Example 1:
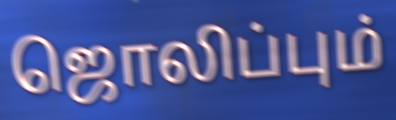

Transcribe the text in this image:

ஜொலிப்பும்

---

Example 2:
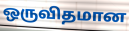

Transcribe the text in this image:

ஒருவிதமான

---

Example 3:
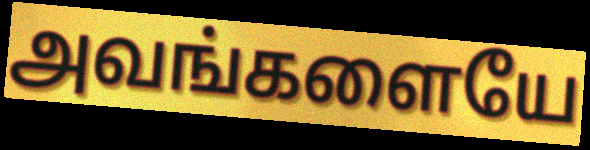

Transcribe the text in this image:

அவங்களையே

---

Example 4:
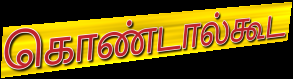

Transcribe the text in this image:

கொண்டால்கூட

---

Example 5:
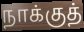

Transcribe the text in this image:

நாக்குத்